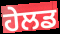
ਹੇਲਡ